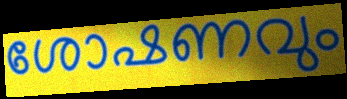
ശോഷണവും